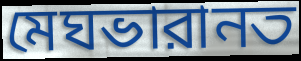
মেঘভারানত